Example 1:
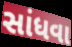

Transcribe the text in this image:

સાંધવા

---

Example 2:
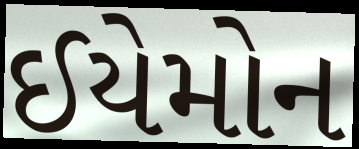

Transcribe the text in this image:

ઈયેમોન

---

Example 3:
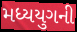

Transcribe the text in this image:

મધ્યયુગની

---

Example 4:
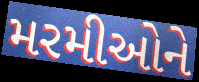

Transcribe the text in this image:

મરમીઓને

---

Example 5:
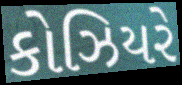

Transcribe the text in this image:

કોઝિયરે